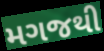
મગજથી